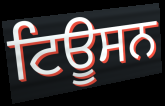
ਟਿਊਸਨ